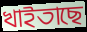
খাইতাছে